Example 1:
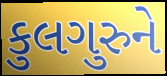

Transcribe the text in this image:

કુલગુરુને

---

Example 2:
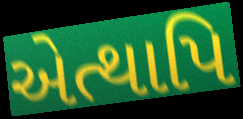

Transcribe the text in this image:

એત્થાપિ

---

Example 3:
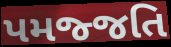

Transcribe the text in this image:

પમજ્જતિ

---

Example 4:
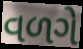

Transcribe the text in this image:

વળગે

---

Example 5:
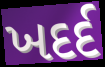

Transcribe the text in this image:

ખદર્દ